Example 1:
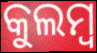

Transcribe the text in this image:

କୁଲମ୍ବ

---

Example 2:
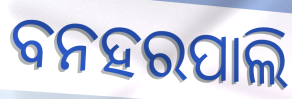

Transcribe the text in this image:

ବନହରପାଲି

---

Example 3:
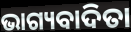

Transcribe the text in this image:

ଭାଗ୍ୟବାଦିତା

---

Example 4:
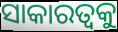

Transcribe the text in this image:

ସାକାରତ୍ଵକୁ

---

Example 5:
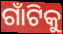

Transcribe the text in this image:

ଗାଁଟିକୁ